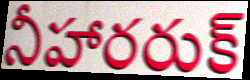
నీహారరుక్